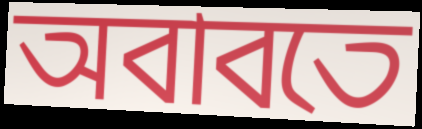
অবাবতে